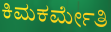
ಕಿಮಕರ್ಮೇತಿ